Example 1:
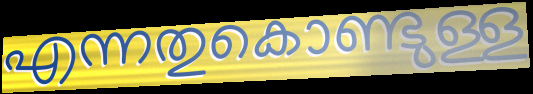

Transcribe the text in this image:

എന്നതുകൊണ്ടുള്ള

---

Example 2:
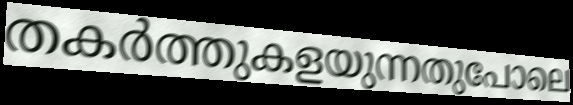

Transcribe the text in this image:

തകർത്തുകളയുന്നതുപോലെ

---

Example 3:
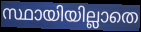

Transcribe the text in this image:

സ്ഥായിയില്ലാതെ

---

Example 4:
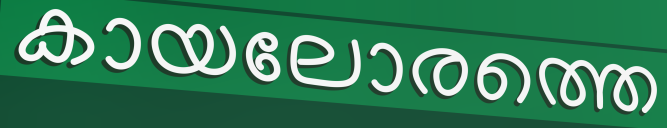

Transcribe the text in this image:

കായലോരത്തെ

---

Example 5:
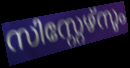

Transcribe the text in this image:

സിസ്റ്റേഴ്സും